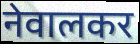
नेवालकर